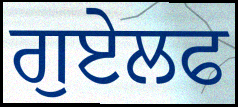
ਗੁਏਲਫ